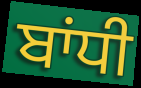
ਬਾਂਧੀ